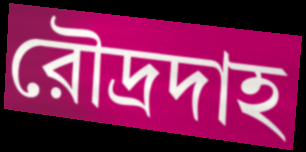
রৌদ্রদাহ